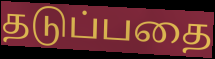
தடுப்பதை